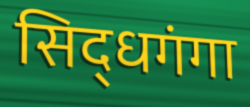
सिद्धगंगा